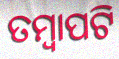
ତମ୍ବାପଟି